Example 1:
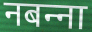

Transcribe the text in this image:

नबन्ना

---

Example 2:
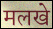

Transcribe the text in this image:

मलखे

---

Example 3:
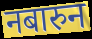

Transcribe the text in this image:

नबारुन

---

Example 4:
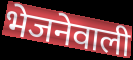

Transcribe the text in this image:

भेजनेवाली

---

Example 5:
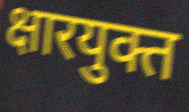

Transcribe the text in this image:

क्षारयुक्त